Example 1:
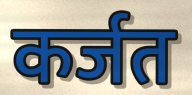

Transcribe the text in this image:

कर्जत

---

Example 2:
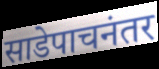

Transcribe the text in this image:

साडेपाचनंतर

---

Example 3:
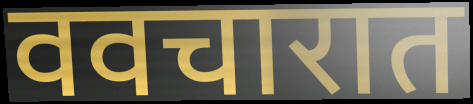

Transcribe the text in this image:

ववचारात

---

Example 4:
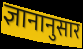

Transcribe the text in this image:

ज्ञानानुसार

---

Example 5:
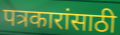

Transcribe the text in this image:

पत्रकारांसाठी